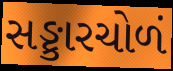
સઙ્કારચોળં